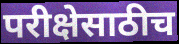
परीक्षेसाठीच